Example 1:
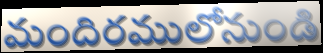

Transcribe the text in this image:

మందిరములోనుండి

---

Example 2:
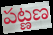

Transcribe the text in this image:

పట్ణణ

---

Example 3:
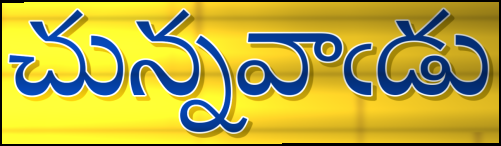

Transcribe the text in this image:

చున్నవాఁడు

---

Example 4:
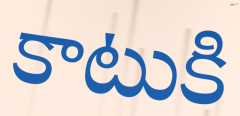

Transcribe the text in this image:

కాటుకి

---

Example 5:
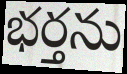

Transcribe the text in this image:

భర్తను